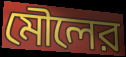
মৌলের